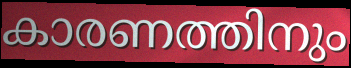
കാരണത്തിനും